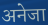
अनेजा